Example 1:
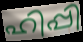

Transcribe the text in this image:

ഹിപ്പി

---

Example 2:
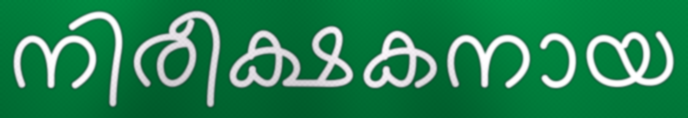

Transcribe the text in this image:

നിരീക്ഷകനായ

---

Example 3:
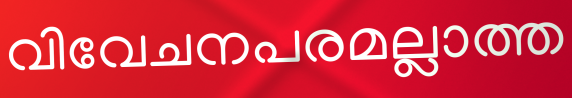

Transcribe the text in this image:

വിവേചനപരമല്ലാത്ത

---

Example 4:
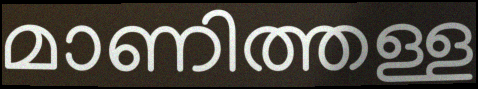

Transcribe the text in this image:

മാണിത്തള്ള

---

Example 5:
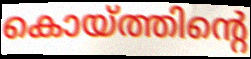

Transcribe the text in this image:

കൊയ്ത്തിന്റെ